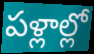
పళ్లాల్లో